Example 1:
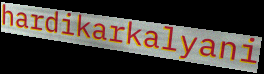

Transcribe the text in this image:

hardikarkalyani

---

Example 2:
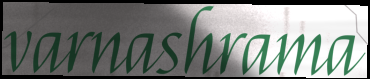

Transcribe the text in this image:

varnashrama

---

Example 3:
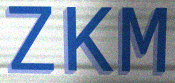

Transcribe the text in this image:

ZKM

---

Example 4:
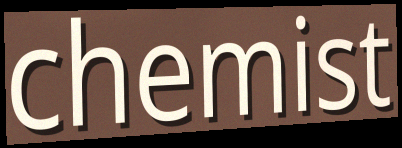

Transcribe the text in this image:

chemist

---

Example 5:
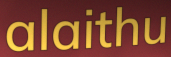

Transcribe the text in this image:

alaithu